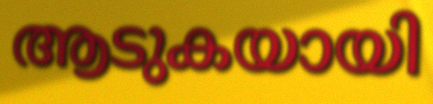
ആടുകയായി